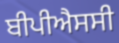
ਬੀਪੀਐਸਸੀ